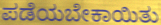
ಪಡೆಯಬೇಕಾಯಿತು